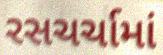
રસચર્ચામાં